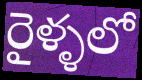
రైళ్ళలో